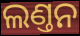
ଲଣ୍ତନ